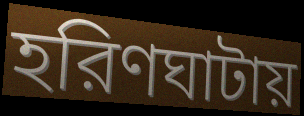
হরিণঘাটায়